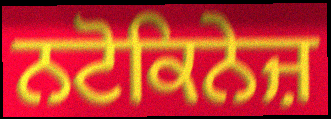
ਨਟੋਕਿਨੇਜ਼